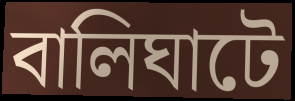
বালিঘাটে